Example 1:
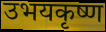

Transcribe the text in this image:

उभयकृष्ण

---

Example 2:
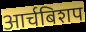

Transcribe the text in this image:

आर्चबिशप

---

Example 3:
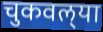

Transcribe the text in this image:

चुकवल्या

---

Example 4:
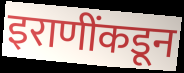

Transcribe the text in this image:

इराणींकडून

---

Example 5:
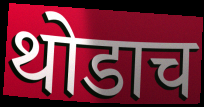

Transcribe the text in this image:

थोडाच